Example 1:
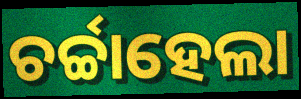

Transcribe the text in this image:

ଚର୍ଚ୍ଚାହେଲା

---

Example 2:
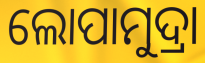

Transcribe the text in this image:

ଲୋପାମୁଦ୍ରା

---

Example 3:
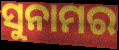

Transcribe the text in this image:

ସୁନାମର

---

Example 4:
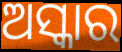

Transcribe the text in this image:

ଅସ୍କାର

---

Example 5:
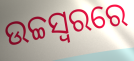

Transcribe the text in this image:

ଉଚ୍ଚସ୍ଵରରେ